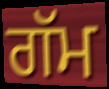
ਗੱਮ